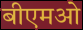
बीएमओ